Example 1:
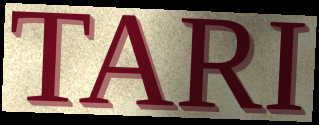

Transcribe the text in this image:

TARI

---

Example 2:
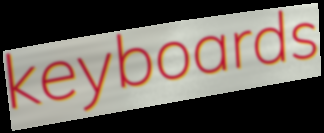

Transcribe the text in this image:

keyboards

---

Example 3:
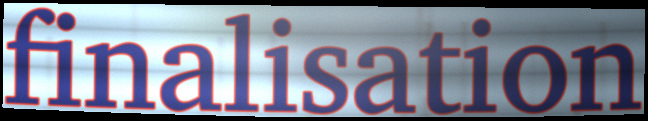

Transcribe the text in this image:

finalisation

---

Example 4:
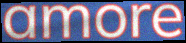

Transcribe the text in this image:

amore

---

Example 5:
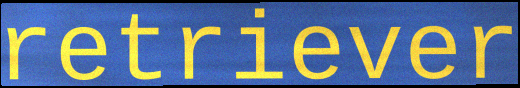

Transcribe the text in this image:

retriever